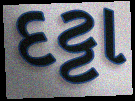
દટ્ટા